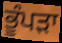
ਭੂੰਪੜਾ